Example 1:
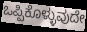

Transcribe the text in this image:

ಒಪ್ಪಿಕೊಳ್ಳುವುದೇ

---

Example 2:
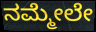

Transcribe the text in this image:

ನಮ್ಮೇಲೇ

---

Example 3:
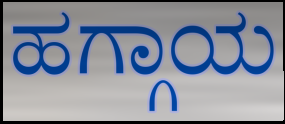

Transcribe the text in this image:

ಹಗ್ಗಾಯ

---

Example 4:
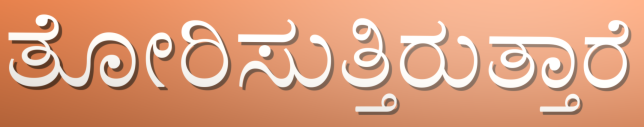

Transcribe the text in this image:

ತೋರಿಸುತ್ತಿರುತ್ತಾರೆ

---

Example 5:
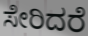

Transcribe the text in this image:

ಸೇರಿದರೆ